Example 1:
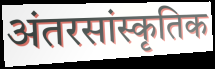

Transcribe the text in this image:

अंतरसांस्कृतिक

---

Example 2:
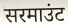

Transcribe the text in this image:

सरमाउंट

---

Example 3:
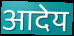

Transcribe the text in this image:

आदेय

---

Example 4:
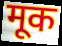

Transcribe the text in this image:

मूक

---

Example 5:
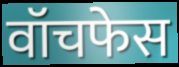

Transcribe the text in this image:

वॉचफेस